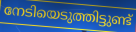
നേടിയെടുത്തിട്ടുണ്ട്